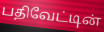
பதிவேட்டின்